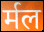
र्मल